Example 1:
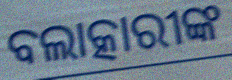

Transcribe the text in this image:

ବଲାତ୍କାରୀଙ୍କ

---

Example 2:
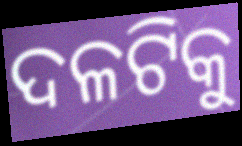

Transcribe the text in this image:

ଦଳଟିକୁ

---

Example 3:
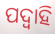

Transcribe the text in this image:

ପଦ୍ଵାହି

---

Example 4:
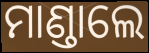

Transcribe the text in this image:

ମାଣ୍ଡାଲେ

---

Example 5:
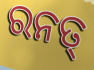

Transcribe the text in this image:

ରନତ୍